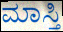
ಮಾಸ್ತಿ